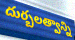
దుర్బలత్వాన్ని